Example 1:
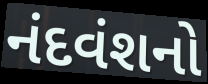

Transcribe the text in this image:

નંદવંશનો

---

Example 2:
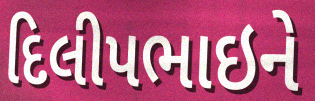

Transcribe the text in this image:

દિલીપભાઇને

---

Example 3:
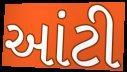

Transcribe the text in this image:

આંટી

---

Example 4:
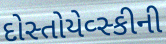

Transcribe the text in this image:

દોસ્તોયેવ્સ્કીની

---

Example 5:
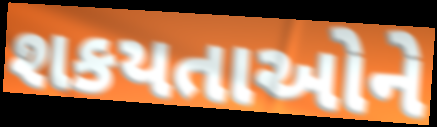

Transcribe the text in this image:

શકયતાઓને